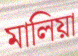
মালিয়া